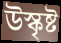
উস্কৃষ্ট